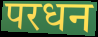
परधन